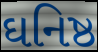
ઘનિષ્ઠ